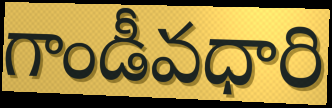
గాండీవధారి